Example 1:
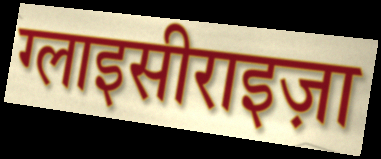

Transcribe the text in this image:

ग्लाइसीराइज़ा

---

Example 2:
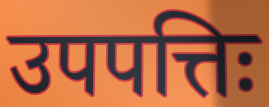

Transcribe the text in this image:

उपपत्तिः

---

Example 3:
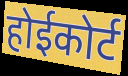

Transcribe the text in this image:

होईकोर्ट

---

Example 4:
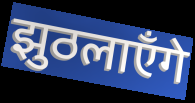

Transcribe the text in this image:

झुठलाएँगे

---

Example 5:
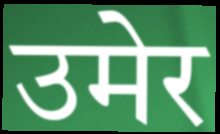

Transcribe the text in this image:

उमेर